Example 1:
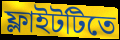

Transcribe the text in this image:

ফ্লাইটটিতে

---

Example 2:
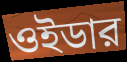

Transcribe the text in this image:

ওইডার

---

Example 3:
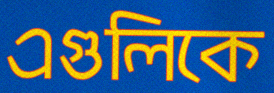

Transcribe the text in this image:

এগুলিকে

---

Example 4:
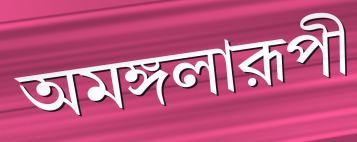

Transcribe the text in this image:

অমঙ্গলারূপী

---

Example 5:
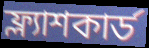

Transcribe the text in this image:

ফ্ল্যাশকার্ড